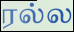
ரல்ல